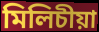
মিলিচীয়া